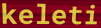
keleti